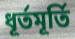
ধূর্তমূর্তি